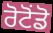
ਰੋਟੋਂਡੋ